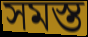
সমস্ত